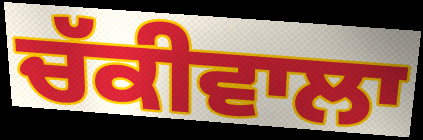
ਚੱਕੀਵਾਲਾ